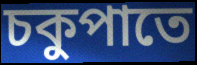
চকুপাতে